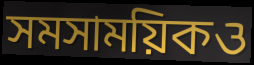
সমসাময়িকও